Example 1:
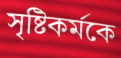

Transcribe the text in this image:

সৃষ্টিকর্মকে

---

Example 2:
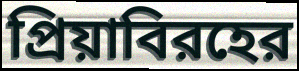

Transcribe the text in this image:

প্রিয়াবিরহের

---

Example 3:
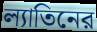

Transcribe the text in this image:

ল্যাতিনের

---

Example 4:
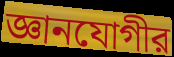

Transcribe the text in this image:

জ্ঞানযোগীর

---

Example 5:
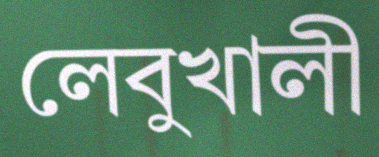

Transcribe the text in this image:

লেবুখালী